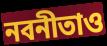
নবনীতাও